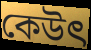
কেউৎ